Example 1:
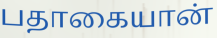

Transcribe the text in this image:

பதாகையான்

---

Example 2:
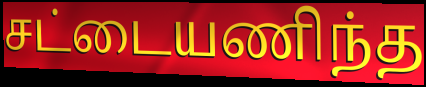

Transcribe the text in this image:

சட்டையணிந்த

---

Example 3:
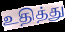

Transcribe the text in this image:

உதித்து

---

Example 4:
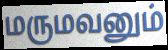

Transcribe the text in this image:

மருமவனும்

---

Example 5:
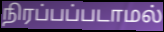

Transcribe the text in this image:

நிரப்பப்படாமல்